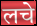
लचे